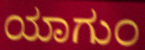
ಯಾಗುಂ